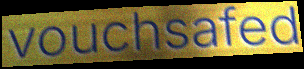
vouchsafed